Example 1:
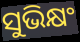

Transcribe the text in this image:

ସୁଭିକ୍ଷଂ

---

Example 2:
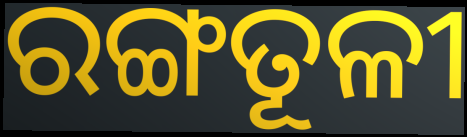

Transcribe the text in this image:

ରଙ୍ଗତୂଳୀ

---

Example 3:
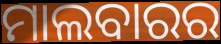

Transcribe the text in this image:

ମାଲବାରର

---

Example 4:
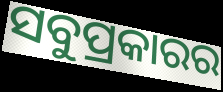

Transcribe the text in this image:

ସବୁପ୍ରକାରର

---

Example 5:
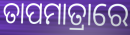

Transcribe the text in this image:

ତାପମାତ୍ରାରେ